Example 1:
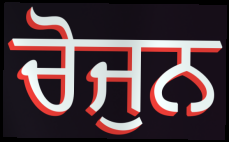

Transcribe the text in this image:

ਚੋਜੁਨ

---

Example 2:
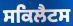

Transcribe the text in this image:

ਸਕਿਲੈਟਸ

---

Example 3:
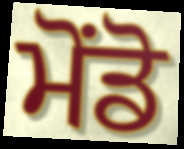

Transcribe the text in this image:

ਮੋਂਡੋ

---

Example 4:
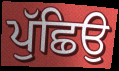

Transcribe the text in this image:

ਪੁੱਛਿਉ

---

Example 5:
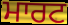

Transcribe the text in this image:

ਮਾਰਟ